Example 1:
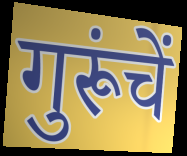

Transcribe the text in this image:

गुरूंचें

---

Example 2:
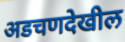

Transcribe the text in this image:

अडचणदेखील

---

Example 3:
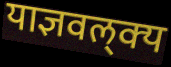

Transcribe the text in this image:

याज्ञवल्क्य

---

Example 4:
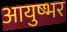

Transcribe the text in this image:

आयुष्भर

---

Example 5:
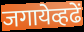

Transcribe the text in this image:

जगायेव्हढें